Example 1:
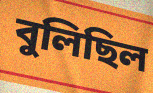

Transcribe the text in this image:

বুলিছিল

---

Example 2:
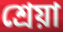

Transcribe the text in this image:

শ্ৰেয়া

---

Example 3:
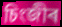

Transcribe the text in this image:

চিংজীৰ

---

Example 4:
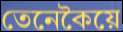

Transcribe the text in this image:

তেনেকৈয়ে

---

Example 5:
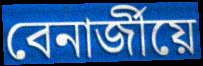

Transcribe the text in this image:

বেনাৰ্জীয়ে